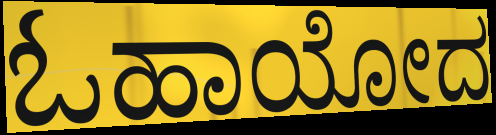
ಓಹಾಯೋದ